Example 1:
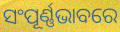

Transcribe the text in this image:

ସଂପୂର୍ଣ୍ଣଭାବରେ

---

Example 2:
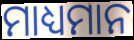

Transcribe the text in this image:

ମାଧ୍ଯମାନ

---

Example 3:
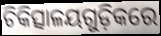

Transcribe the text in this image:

ଚିକିତ୍ସାଳୟଗୁଡ଼ିକରେ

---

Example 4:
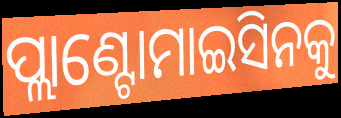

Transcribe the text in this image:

ପ୍ଲାଣ୍ଟୋମାଇସିନକୁ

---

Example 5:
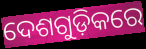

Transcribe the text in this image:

ଦେଶଗୁଡ଼ିକରେ